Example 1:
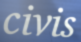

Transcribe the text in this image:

civis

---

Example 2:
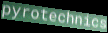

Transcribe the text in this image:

pyrotechnics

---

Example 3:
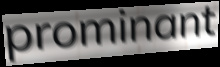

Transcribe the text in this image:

prominant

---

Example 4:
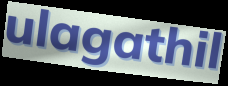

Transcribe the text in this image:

ulagathil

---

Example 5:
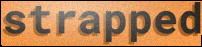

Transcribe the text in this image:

strapped